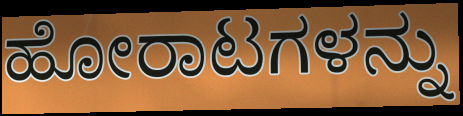
ಹೋರಾಟಗಳನ್ನು